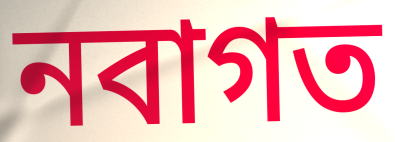
নবাগত